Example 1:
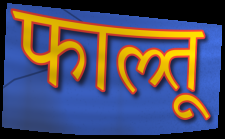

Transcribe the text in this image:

फाल्तू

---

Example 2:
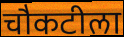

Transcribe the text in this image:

चौकटीला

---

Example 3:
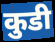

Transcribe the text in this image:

कुडी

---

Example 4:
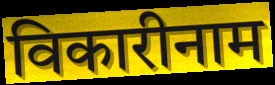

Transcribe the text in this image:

विकारीनाम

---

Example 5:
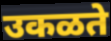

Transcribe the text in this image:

उकळते